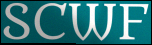
SCWF